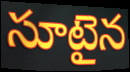
సూటైన